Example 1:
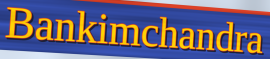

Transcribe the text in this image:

Bankimchandra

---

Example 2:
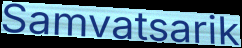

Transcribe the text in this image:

Samvatsarik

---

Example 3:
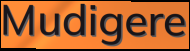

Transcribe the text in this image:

Mudigere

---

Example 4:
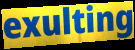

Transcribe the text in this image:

exulting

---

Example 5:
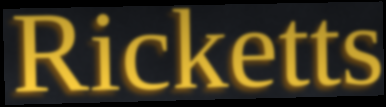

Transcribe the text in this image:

Ricketts